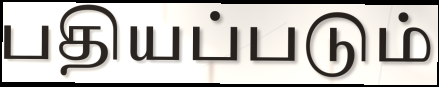
பதியப்படும்